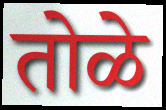
तोळे